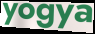
yogya